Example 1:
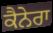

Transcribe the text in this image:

ਕੈਨੇਰਾ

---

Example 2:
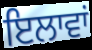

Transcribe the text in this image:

ਇਲਾਵਾਂ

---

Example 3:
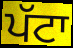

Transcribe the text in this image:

ਪੱਟਾ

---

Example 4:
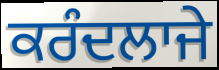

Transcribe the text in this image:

ਕਰੰਦਲਾਜੇ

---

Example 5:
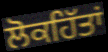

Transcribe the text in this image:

ਲੋਕਹਿੱਤਾਂ